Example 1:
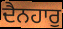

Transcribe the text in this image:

ਦੈਨਹਾਰੁ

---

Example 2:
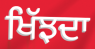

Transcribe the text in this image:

ਖਿੱਝਦਾ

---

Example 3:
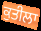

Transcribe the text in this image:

ਕੁਤੀਲਾ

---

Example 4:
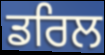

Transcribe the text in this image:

ਡਰਿਲ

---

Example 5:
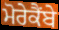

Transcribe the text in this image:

ਮੋਰੇਕੈਂਬੇ